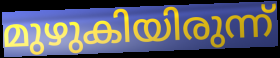
മുഴുകിയിരുന്ന്